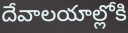
దేవాలయాల్లోకి